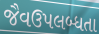
જૈવઉપલબ્ધતા